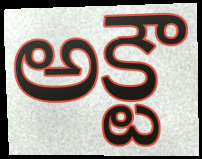
అక్టౌ